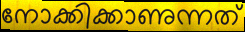
നോക്കിക്കാണുന്നത്